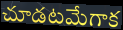
చూడటమేగాక